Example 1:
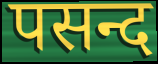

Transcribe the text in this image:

पसन्द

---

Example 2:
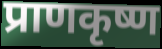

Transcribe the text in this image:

प्राणकृष्ण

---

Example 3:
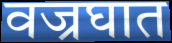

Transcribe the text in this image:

वज्रघात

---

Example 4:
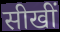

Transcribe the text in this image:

सीखीं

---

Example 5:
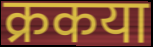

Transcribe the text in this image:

क्रकया